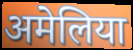
अमेलिया